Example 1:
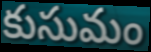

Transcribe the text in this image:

కుసుమం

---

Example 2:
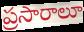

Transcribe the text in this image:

ప్రసారాలూ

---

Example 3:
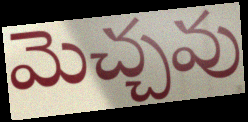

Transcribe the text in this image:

మెచ్చవు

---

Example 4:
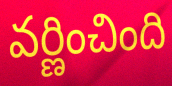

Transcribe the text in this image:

వర్ణించింది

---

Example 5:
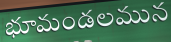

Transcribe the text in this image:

భూమండలమున